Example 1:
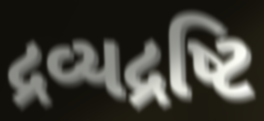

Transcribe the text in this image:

દ્રવ્યદ્રષ્ટિ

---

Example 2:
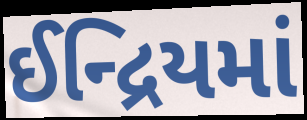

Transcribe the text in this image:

ઈન્દ્રિયમાં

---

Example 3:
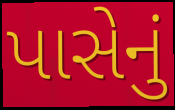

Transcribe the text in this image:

પાસેનું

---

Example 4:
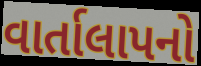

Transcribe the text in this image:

વાર્તાલાપનો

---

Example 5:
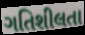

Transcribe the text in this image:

ગતિશીલતા